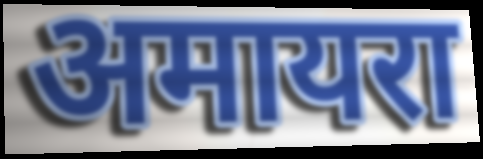
अमायरा